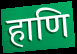
हाणि